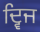
ਦ੍ਵਿਜ